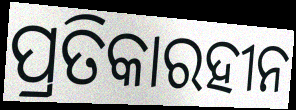
ପ୍ରତିକାରହୀନ